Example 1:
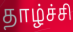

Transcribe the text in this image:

தாழ்ச்சி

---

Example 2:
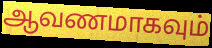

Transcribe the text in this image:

ஆவணமாகவும்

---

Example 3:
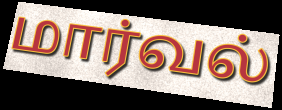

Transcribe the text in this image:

மார்வல்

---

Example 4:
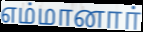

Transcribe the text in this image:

எம்மானார்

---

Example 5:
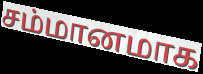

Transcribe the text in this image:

சம்மானமாக